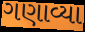
ગણાવ્યા